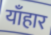
याँहार